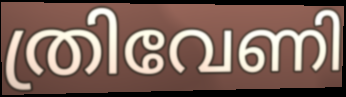
ത്രിവേണി